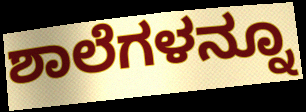
ಶಾಲೆಗಳನ್ನೂ